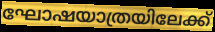
ഘോഷയാത്രയിലേക്ക്